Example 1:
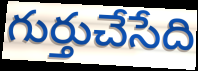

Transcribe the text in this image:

గుర్తుచేసేది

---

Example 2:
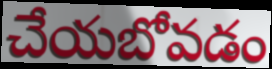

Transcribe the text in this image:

చేయబోవడం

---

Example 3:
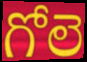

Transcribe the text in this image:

గోలె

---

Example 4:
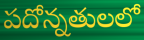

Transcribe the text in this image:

పదోన్నతులలో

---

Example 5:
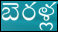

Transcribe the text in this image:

బెరళ్ల